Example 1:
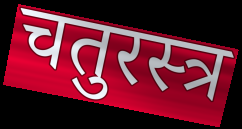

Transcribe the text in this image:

चतुरस्त्र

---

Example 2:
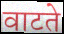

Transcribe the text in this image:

वाटते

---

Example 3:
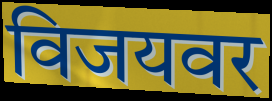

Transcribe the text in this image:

विजयवर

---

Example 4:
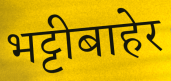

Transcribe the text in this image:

भट्टीबाहेर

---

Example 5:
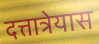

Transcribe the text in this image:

दत्तात्रेयास